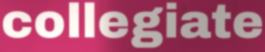
collegiate